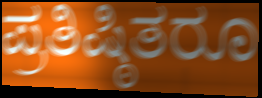
ಪ್ರತಿಷ್ಠಿತರೂ